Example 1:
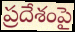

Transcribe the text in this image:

ప్రదేశంపై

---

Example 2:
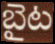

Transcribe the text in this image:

బైట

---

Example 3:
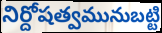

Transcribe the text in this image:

నిర్దోషత్వమునుబట్టి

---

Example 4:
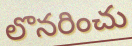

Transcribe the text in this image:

లొనరించు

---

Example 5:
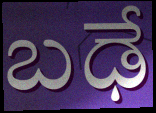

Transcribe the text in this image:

బఢే